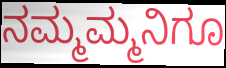
ನಮ್ಮಮ್ಮನಿಗೂ